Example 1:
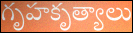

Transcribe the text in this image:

గృహకృత్యాలు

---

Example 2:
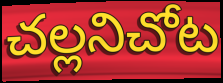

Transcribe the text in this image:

చల్లనిచోట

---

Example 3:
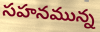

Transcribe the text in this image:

సహనమున్న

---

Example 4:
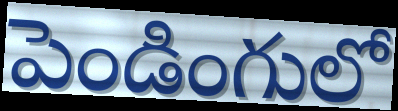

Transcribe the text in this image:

పెండింగులో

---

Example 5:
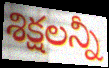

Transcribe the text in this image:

శిక్షలన్నీ